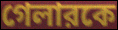
গেলারকে